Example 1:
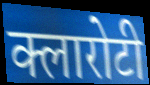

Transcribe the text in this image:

क्लारोटी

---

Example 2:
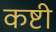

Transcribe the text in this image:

कष्टी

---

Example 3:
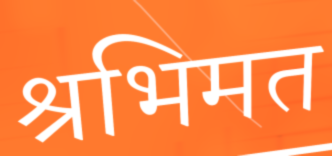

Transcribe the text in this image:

श्रभिमत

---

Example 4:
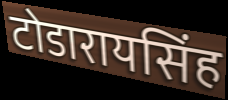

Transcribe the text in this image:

टोडारायसिंह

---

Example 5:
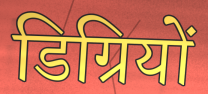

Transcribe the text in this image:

डिग्रियों